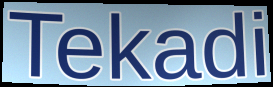
Tekadi